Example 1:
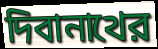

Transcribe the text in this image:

দিবানাথের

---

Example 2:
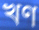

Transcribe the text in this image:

খণ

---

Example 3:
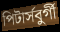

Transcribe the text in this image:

পিটার্সবুর্গী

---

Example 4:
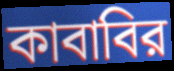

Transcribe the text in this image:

কাবাবির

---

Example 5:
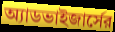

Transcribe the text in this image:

অ্যাডভাইজার্সের